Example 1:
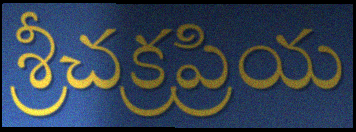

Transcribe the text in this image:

శ్రీచక్రప్రియ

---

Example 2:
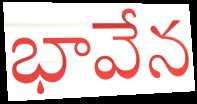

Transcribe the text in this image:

భావేన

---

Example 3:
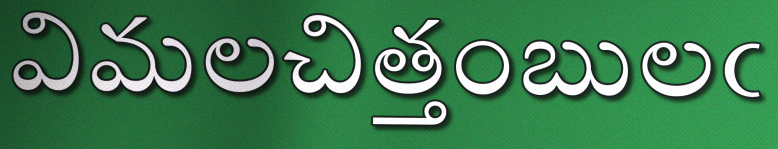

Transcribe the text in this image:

విమలచిత్తంబులఁ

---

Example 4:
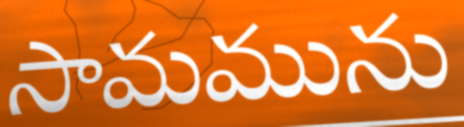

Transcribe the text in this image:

సామమును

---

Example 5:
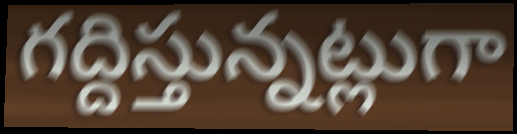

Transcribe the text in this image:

గద్దిస్తున్నట్లుగా